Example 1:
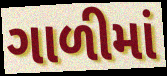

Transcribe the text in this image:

ગાળીમાં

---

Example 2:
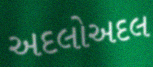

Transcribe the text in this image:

અદલોઅદલ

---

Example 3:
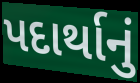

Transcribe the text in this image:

પદાર્થાનું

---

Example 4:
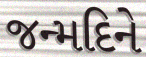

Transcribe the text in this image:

જન્મદિને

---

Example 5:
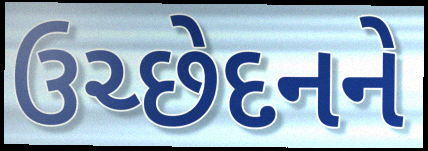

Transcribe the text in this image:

ઉચ્છેદનને